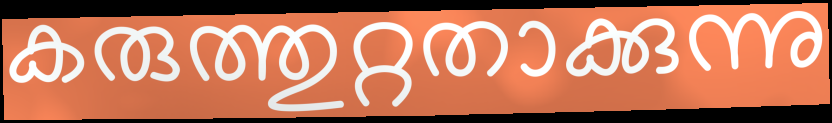
കരുത്തുറ്റതാക്കുന്നു